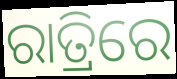
ରାତ୍ରିରେ